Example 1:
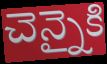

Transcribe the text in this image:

చెన్నైకి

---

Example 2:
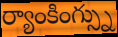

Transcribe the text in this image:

ర్యాంకింగ్స్ను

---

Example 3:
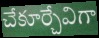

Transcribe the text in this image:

చేకూర్చేవిగా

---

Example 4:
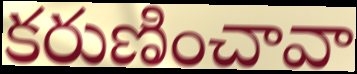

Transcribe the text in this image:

కరుణించావా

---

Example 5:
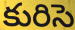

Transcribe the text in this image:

కురిసె